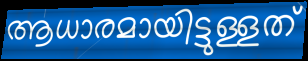
ആധാരമായിട്ടുള്ളത്